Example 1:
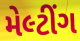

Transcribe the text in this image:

મેલ્ટીંગ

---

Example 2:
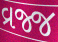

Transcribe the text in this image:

વ્રજ્જ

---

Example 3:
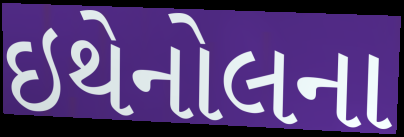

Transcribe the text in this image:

ઇથેનોલના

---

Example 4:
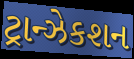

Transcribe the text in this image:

ટ્રાન્ઝેકશન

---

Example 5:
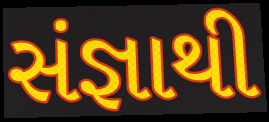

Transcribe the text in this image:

સંજ્ઞાથી